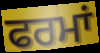
ਫਰਮਾਂ